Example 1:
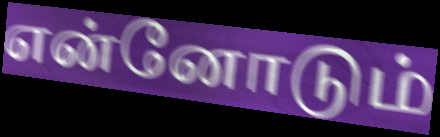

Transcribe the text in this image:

என்னோடும்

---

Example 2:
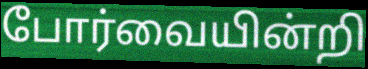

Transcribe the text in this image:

போர்வையின்றி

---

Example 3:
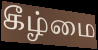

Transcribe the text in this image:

கீழ்மை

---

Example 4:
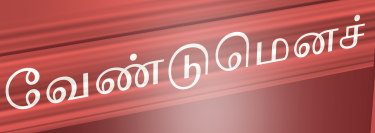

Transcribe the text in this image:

வேண்டுமெனச்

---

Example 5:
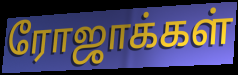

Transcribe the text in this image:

ரோஜாக்கள்